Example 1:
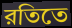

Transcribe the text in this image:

রতিতে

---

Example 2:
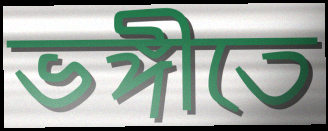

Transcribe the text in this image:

ভঙ্গীতে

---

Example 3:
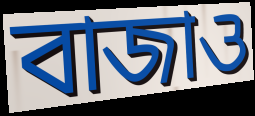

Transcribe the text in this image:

বাজাও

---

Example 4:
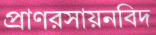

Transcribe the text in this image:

প্রাণরসায়নবিদ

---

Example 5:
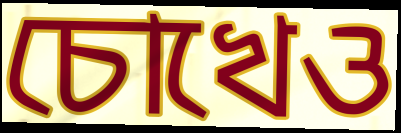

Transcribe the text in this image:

চোখেও